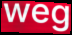
weg